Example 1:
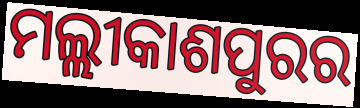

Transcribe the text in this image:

ମଲ୍ଲୀକାଶପୁରର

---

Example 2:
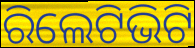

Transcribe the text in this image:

ରିଲେଟିଭିଟି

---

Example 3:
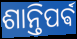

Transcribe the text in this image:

ଶାନ୍ତିପର୍ଵ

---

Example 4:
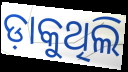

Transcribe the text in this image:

ଡ଼ାକୁଥିଲି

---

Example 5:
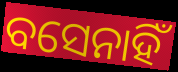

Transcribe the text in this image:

ବସେନାହିଁ